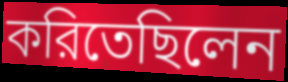
করিতেছিলেন